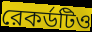
রেকর্ডটিও